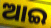
ଆଇ